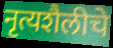
नृत्यशैलीचे